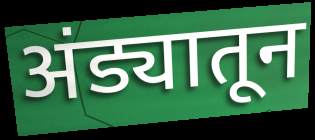
अंड्यातून